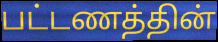
பட்டணத்தின்